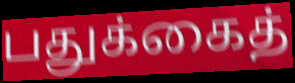
பதுக்கைத்